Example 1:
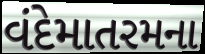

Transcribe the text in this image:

વંદેમાતરમના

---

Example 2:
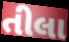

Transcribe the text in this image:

તીલા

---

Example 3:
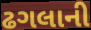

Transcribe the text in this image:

ઢગલાની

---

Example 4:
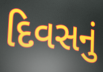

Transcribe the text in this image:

દિવસનું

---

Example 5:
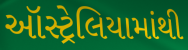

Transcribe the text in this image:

ઑસ્ટ્રેલિયામાંથી